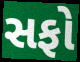
સફો